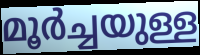
മൂർച്ചയുള്ള